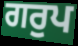
ਗਰੁਪ